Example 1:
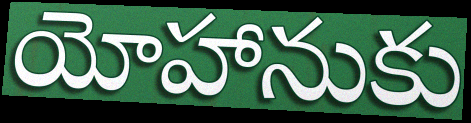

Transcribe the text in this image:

యోహానుకు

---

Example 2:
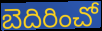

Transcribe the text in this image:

బెదిరించో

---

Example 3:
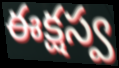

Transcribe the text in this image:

ఈక్షస్వ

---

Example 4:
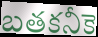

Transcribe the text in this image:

బతకనీకె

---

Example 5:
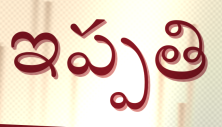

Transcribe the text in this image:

ఇప్పతి